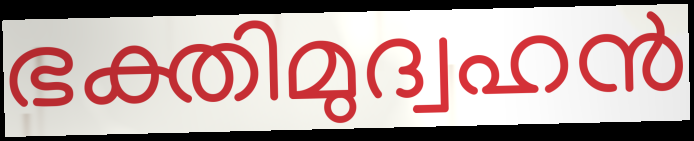
ഭക്തിമുദ്വഹൻ